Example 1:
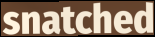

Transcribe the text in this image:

snatched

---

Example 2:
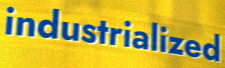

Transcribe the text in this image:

industrialized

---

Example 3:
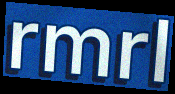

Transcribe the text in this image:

rmrl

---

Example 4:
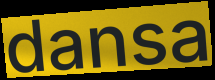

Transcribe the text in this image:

dansa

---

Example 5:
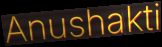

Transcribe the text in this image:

Anushakti